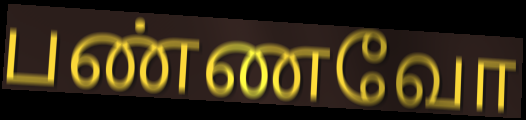
பண்ணவோ